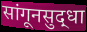
सांगूनसुद्धा